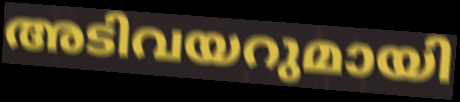
അടിവയറുമായി